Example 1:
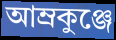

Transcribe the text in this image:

আম্রকুঞ্জে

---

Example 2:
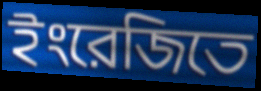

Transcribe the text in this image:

ইংরেজিতে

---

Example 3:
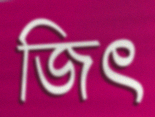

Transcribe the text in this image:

জিৎ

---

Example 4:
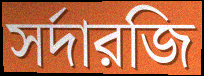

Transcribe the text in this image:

সর্দারজি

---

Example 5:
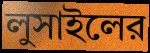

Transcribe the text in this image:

লুসাইলের